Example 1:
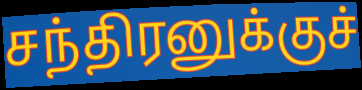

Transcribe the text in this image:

சந்திரனுக்குச்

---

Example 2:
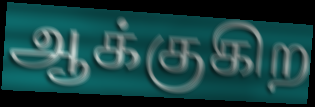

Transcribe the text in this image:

ஆக்குகிற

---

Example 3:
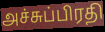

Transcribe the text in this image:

அச்சுப்பிரதி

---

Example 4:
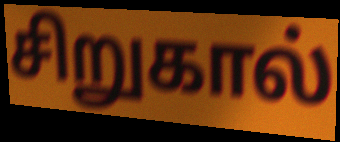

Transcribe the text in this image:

சிறுகால்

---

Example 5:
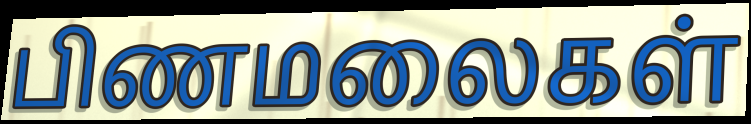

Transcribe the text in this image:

பிணமலைகள்